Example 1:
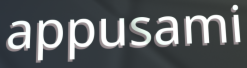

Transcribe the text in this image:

appusami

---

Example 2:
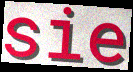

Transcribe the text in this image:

sie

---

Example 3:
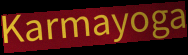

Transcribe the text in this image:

Karmayoga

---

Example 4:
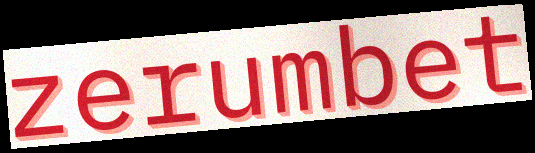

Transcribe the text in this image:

zerumbet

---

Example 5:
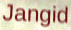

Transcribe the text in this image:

Jangid